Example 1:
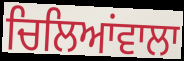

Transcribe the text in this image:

ਚਿਲਿਆਂਵਾਲਾ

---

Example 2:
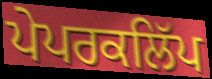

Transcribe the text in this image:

ਪੇਪਰਕਲਿੱਪ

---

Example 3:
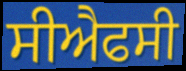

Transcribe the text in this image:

ਸੀਐਫਸੀ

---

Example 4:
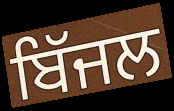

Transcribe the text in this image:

ਬਿੱਜਲ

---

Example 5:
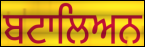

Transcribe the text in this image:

ਬਟਾਲਿਅਨ